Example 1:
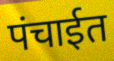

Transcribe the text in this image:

पंचाईत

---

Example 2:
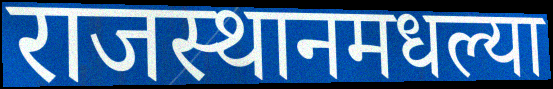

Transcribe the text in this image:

राजस्थानमधल्या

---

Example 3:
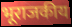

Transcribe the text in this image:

भूराजकीय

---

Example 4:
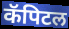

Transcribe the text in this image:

कॅपिटल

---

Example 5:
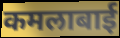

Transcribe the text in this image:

कमलाबाई